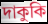
দাকুকি